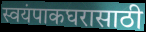
स्वयंपाकघरासाठी